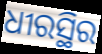
ଧୀରସ୍ଥିର